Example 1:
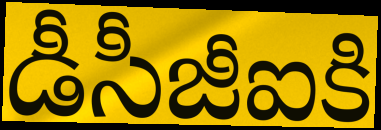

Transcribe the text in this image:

డీసీజీఐకి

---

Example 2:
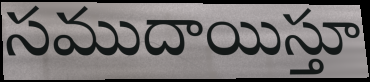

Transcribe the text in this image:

సముదాయిస్తూ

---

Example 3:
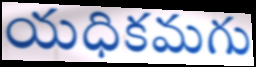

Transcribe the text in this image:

యధికమగు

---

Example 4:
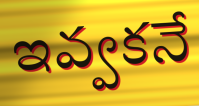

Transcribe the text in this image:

ఇవ్వకనే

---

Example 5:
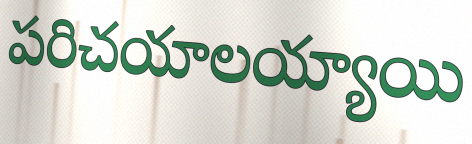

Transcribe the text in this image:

పరిచయాలయ్యాయి